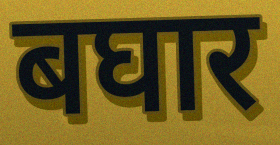
बघार